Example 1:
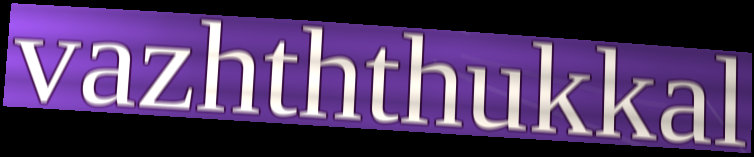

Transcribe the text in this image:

vazhththukkal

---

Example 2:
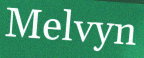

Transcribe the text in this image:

Melvyn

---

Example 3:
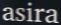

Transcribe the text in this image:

asira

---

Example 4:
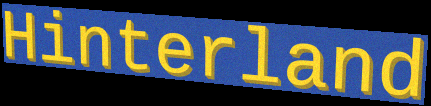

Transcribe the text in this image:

Hinterland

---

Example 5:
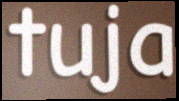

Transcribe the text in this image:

tuja